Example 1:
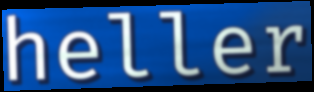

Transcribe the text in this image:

heller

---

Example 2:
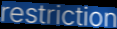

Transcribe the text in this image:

restriction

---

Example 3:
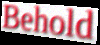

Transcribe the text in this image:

Behold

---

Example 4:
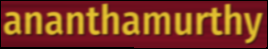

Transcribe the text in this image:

ananthamurthy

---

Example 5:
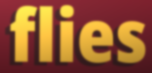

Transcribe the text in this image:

flies